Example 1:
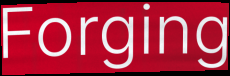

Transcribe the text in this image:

Forging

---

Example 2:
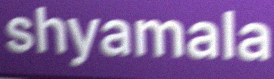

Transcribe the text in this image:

shyamala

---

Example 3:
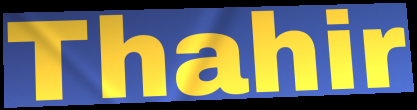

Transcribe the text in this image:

Thahir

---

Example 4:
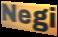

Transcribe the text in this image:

Negi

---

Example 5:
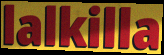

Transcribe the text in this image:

lalkilla